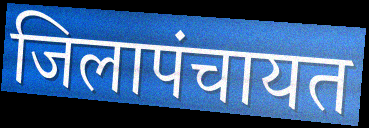
जिलापंचायत